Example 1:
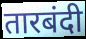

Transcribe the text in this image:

तारबंदी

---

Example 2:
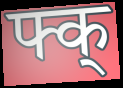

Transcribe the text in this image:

फ्क्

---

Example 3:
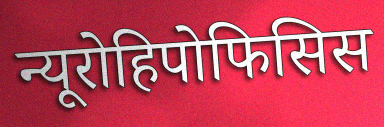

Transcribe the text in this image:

न्यूरोहिपोफिसिस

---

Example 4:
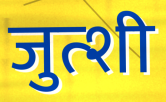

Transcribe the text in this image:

जुत्शी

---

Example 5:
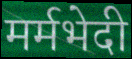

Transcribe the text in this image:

मर्मभेदी